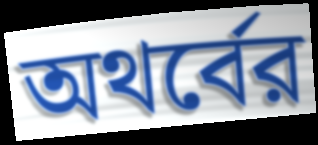
অথর্বের